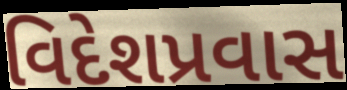
વિદેશપ્રવાસ